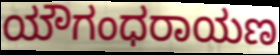
ಯೌಗಂಧರಾಯಣ